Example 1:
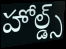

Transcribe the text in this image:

హోల్డ్స్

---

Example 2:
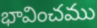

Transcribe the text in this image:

భావించము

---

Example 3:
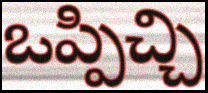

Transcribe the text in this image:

ఒప్పిచ్చి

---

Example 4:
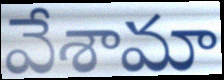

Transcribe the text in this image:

వేశామా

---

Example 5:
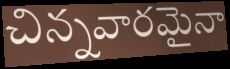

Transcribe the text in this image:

చిన్నవారమైనా